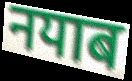
नयाब